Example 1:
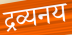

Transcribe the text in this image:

द्रव्यनय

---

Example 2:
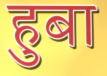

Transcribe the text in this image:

हुबा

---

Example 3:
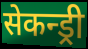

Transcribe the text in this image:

सेकन्ड्री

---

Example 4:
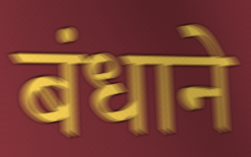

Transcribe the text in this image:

बंधाने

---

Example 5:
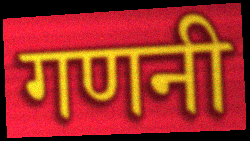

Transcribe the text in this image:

गणनी